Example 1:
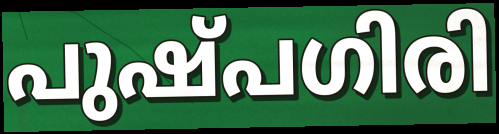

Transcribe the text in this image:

പുഷ്പഗിരി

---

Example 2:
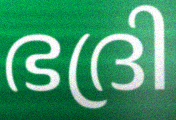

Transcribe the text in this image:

ഭദ്രി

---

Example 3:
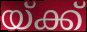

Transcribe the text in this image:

യ്ക്ക്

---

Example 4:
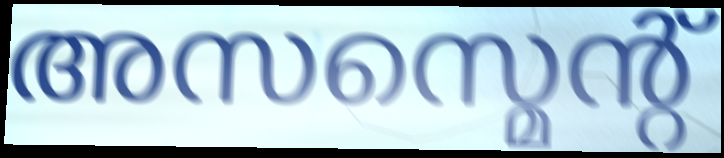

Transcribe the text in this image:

അസസ്മെന്റ്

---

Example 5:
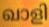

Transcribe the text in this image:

ഖാളി